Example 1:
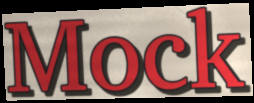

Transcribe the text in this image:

Mock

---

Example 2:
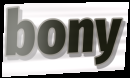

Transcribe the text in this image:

bony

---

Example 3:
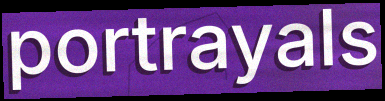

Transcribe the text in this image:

portrayals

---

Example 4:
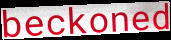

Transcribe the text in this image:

beckoned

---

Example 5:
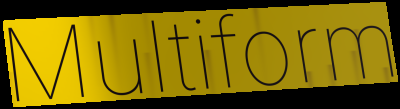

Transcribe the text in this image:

Multiform